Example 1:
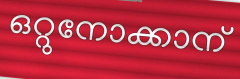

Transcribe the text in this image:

ഒറ്റുനോക്കാന്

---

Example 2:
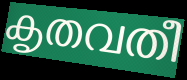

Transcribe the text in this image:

കൃതവതീ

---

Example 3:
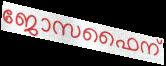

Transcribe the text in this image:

ജോസഫൈന്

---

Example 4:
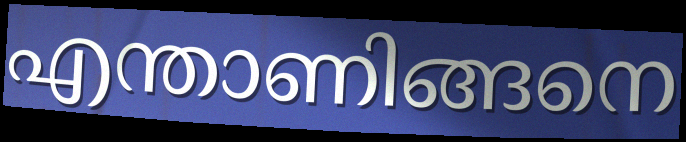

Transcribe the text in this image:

എന്താണിങ്ങനെ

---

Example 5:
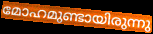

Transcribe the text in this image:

മോഹമുണ്ടായിരുന്നു